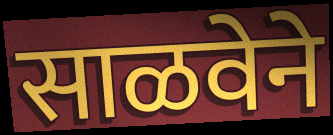
साळवेने